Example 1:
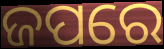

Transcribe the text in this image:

ଜପରେ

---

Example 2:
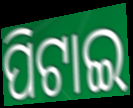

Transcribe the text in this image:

ପିଟାଇ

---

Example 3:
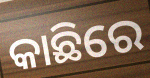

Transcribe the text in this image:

କାଛିରେ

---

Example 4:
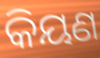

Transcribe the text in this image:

କିୟଣ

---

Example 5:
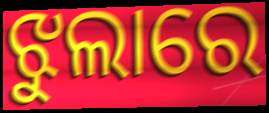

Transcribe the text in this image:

ଝୁଲାରେ